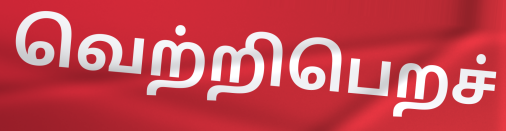
வெற்றிபெறச்